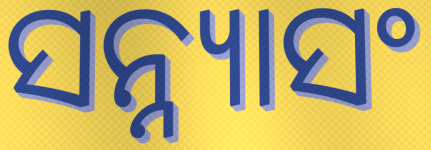
ସନ୍ନ୍ୟାସଂ